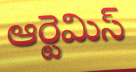
ఆర్టెమిస్